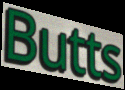
Butts